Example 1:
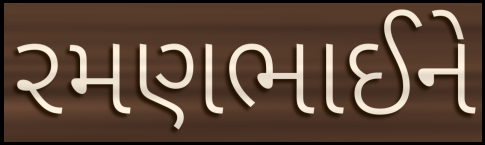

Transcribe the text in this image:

રમણભાઈને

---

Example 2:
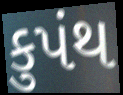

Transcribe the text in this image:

કુપંથ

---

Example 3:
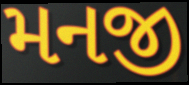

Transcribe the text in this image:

મનજી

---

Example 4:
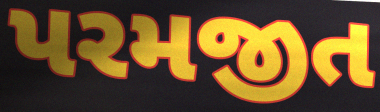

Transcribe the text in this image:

પરમજીત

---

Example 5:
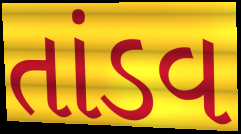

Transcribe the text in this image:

તાંડવ